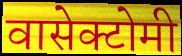
वासेक्टोमी